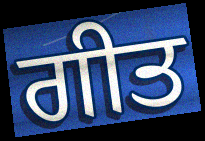
ਗੀਤ